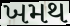
ખમથ